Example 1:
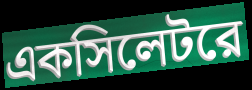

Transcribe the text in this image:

একসিলেটরে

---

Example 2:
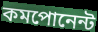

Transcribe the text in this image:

কমপোনেন্ট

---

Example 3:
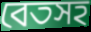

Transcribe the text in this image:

বেতসহ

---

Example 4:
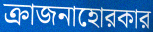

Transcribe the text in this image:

ক্রাজনাহোরকার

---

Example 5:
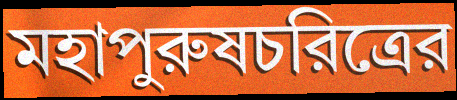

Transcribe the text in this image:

মহাপুরুষচরিত্রের